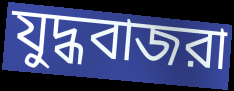
যুদ্ধবাজরা